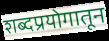
शब्दप्रयोगातून